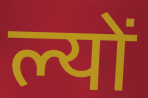
ल्यों